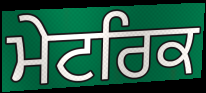
ਮੇਟਰਿਕ